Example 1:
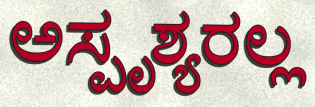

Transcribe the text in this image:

ಅಸ್ಪೃಶ್ಯರಲ್ಲ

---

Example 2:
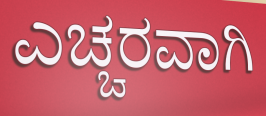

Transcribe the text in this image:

ಎಚ್ಚರವಾಗಿ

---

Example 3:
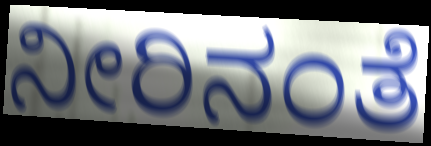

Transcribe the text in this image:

ನೀರಿನಂತೆ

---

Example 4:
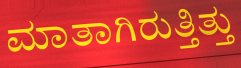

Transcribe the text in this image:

ಮಾತಾಗಿರುತ್ತಿತ್ತು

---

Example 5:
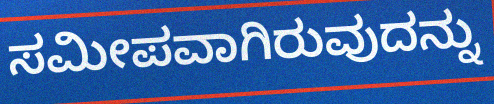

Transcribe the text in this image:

ಸಮೀಪವಾಗಿರುವುದನ್ನು